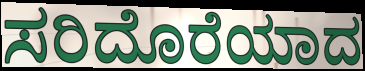
ಸರಿದೊರೆಯಾದ